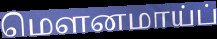
மௌனமாய்ப்